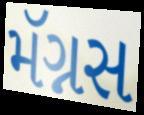
મૅગ્નસ